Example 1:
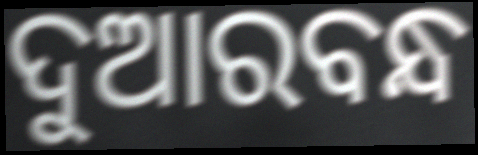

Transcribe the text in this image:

ଦୁଆରବନ୍ଧ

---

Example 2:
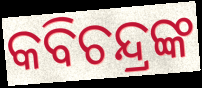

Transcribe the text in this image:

କବିଚନ୍ଦ୍ରଙ୍କ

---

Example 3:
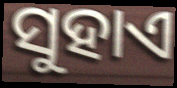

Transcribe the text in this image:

ସୁହାଏ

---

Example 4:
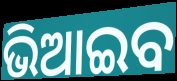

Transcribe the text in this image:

ଭିଆଇବ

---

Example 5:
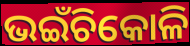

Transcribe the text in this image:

ଭଇଁଚିକୋଳି